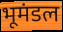
भूमंडल